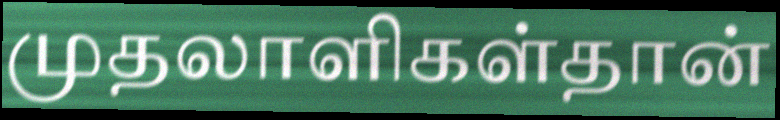
முதலாளிகள்தான்